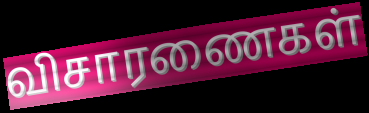
விசாரணைகள்